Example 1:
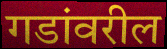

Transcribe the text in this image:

गडांवरील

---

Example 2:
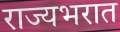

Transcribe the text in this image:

राज्यभरात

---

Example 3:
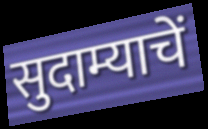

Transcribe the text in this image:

सुदाम्याचें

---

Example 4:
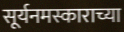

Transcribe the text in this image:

सूर्यनमस्काराच्या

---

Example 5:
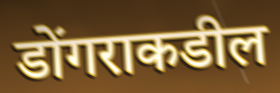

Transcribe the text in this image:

डोंगराकडील